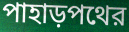
পাহাড়পথের